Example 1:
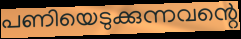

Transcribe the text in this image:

പണിയെടുക്കുന്നവന്റെ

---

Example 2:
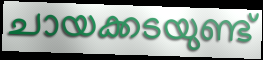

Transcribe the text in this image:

ചായക്കടയുണ്ട്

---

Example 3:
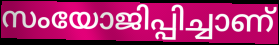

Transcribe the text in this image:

സംയോജിപ്പിച്ചാണ്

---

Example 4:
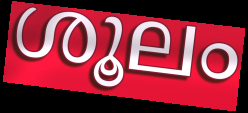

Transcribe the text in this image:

ശൂലം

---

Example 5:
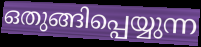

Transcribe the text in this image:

ഒതുങ്ങിപ്പെയ്യുന്ന